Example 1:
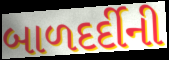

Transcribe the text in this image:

બાળદર્દીની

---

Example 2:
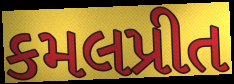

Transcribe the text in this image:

કમલપ્રીત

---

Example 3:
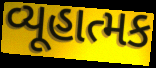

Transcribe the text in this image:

વ્યૂહાત્મક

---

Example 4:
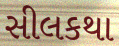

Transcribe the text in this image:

સીલકથા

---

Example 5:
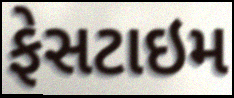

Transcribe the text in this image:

ફેસટાઇમ